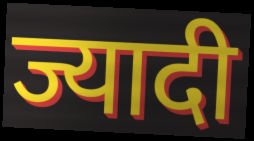
ज्यादी